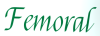
Femoral